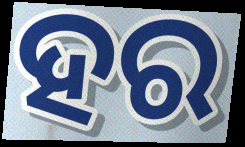
ହର